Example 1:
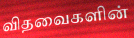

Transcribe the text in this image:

விதவைகளின்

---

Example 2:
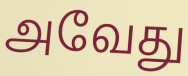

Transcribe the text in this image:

அவேது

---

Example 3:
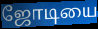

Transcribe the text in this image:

ஜோடியை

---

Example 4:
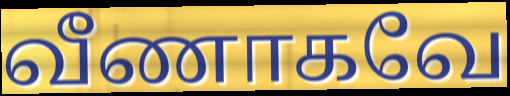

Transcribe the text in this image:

வீணாகவே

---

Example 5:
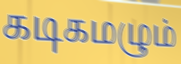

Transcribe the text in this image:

கடிகமழும்